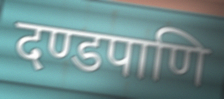
दण्डपाणि